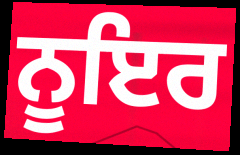
ਨੂਇਰ